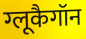
ग्लूकैगॉन